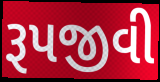
રૂપજીવી